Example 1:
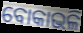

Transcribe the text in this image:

ବୋକାଭଳି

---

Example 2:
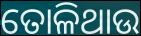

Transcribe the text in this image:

ତୋଳିଥାଉ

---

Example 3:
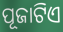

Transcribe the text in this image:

ପୂଜାଟିଏ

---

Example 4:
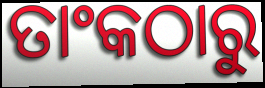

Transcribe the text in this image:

ତାଂକଠାରୁ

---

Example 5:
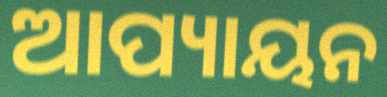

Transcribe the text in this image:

ଆପ୍ୟାୟନ